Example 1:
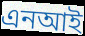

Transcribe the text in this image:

এনআই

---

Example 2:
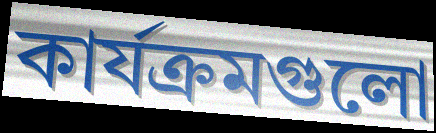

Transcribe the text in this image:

কার্যক্রমগুলো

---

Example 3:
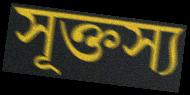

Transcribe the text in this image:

সূক্তস্য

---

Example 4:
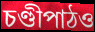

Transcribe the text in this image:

চণ্ডীপাঠও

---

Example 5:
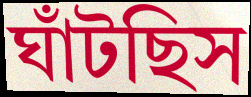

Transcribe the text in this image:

ঘাঁটছিস